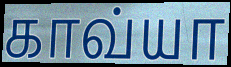
காவ்யா